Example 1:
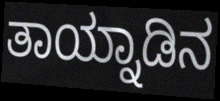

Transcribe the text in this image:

ತಾಯ್ನಾಡಿನ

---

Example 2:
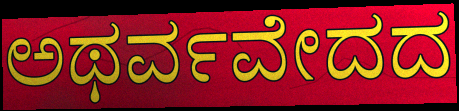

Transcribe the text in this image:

ಅಥರ್ವವೇದದ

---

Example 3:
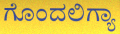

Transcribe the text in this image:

ಗೊಂದಲಿಗ್ಯಾ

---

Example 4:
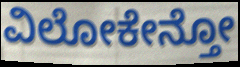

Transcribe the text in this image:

ವಿಲೋಕೇನ್ತೋ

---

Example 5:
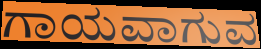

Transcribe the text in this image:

ಗಾಯವಾಗುವ